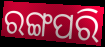
ରଙ୍ଗପରି